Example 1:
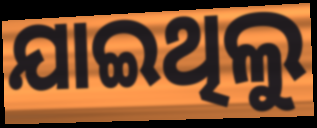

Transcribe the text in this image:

ଯାଇଥିଲୁ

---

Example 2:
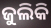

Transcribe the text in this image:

ଜୁଲିକି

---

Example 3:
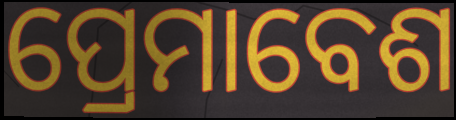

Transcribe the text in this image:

ପ୍ରେମାବେଶ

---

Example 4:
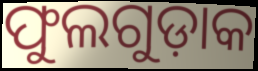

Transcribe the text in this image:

ଫୁଲଗୁଡ଼ାକ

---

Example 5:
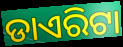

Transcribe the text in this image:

ଡାଏରିଟା